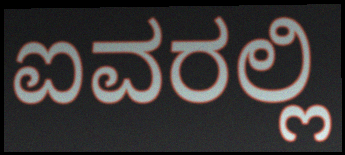
ಐವರಲ್ಲಿ